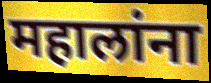
महालांना